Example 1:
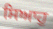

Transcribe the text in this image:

ਸਿਆਹੁ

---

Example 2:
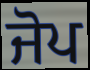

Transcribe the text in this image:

ਜੋਪ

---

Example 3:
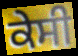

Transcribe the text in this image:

ਕੇਸੀ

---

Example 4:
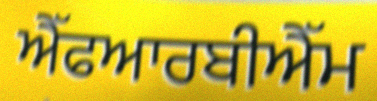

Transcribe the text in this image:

ਐੱਫਆਰਬੀਐੱਮ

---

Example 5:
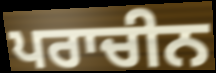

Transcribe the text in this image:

ਪਰਾਚੀਨ